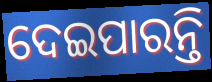
ଦେଇପାରନ୍ତି